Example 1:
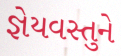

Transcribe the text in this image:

જ્ઞેયવસ્તુને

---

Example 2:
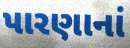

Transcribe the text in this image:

પારણાનાં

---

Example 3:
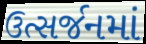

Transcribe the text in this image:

ઉત્સર્જનમાં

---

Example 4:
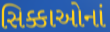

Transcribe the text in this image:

સિક્કાઓનાં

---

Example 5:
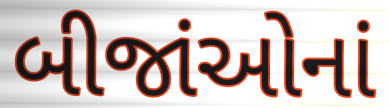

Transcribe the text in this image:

બીજાંઓનાં